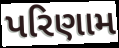
પરિણામ